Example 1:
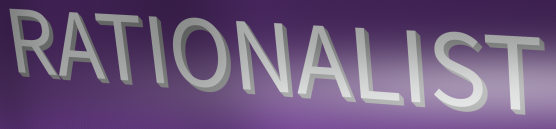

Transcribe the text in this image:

RATIONALIST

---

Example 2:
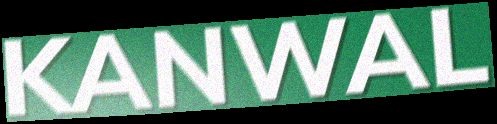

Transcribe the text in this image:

KANWAL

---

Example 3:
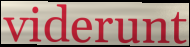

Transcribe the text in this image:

viderunt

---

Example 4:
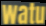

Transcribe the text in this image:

watu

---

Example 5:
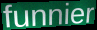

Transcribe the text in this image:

funnier